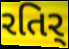
રતિર્